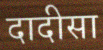
दादीसा